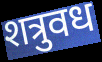
शत्रुवध